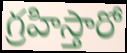
గ్రహిస్తారో